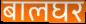
बालघर